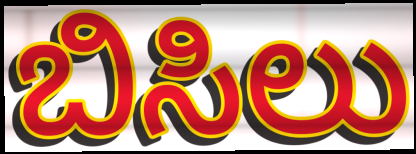
ಬಿಸಿಲು